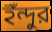
ইঁন্দুর